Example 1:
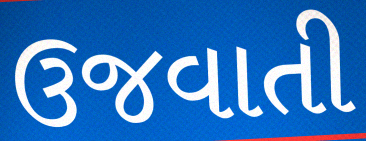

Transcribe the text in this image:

ઉજવાતી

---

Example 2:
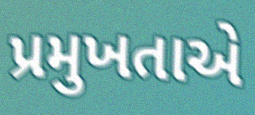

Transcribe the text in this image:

પ્રમુખતાએ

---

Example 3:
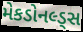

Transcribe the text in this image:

મેકડોનલ્ડ્સ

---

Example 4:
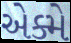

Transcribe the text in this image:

એક્મે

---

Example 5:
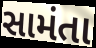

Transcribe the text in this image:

સામંતા